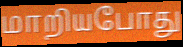
மாறியபோது